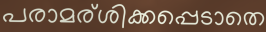
പരാമര്ശിക്കപ്പെടാതെ